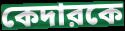
কেদারকে